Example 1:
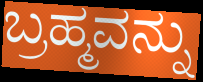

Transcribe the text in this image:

ಬ್ರಹ್ಮವನ್ನು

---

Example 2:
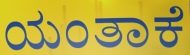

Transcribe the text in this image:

ಯಂತಾಕೆ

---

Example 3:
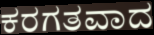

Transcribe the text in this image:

ಕರಗತವಾದ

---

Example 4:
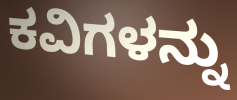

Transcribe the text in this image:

ಕವಿಗಳನ್ನು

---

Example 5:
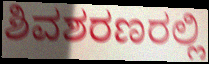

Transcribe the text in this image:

ಶಿವಶರಣರಲ್ಲಿ